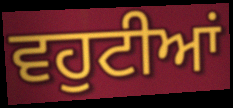
ਵਹੁਟੀਆਂ